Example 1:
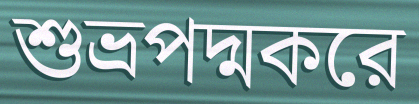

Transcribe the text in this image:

শুভ্রপদ্মকরে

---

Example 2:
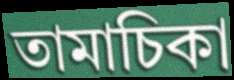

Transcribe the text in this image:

তামাচিকা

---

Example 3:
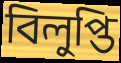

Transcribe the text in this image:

বিলুপ্তি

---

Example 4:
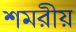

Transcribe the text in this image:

শমরীয়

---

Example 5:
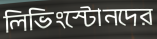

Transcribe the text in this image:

লিভিংস্টোনদের